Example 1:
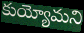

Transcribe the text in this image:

కుయ్యోమని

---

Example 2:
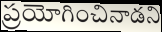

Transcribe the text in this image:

ప్రయోగించినాడని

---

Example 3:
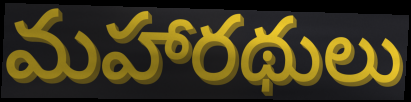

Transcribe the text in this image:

మహారథులు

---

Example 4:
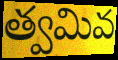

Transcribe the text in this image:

త్వమివ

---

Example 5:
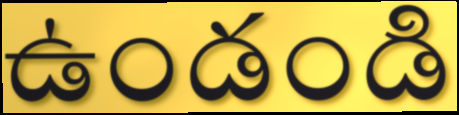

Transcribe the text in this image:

ఉండండి